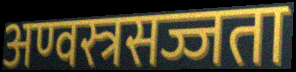
अण्वस्त्रसज्जता